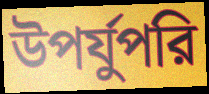
উপর্যুপরি